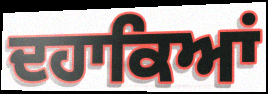
ਦਹਾਕਿਆਂ